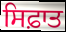
ਸਿਫ਼ਾਤ